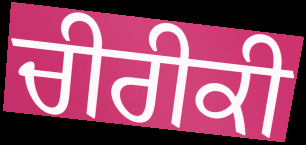
ਚੀਰੀਕੀ